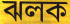
ঝলক